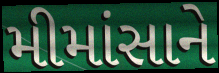
મીમાંસાને